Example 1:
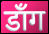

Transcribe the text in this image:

डाँग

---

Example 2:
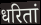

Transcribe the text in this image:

धरितां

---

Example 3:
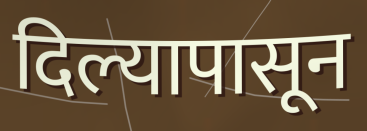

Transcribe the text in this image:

दिल्यापासून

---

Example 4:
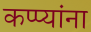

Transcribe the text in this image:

कप्प्यांना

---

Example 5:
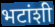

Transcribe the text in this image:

भटांशी